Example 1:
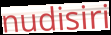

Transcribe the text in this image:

nudisiri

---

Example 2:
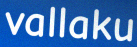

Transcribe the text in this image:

vallaku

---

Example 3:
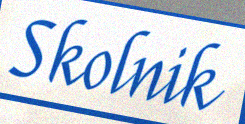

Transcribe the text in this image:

Skolnik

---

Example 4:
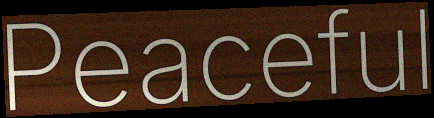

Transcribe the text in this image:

Peaceful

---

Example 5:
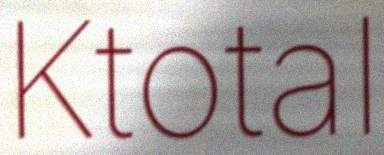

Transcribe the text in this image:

Ktotal